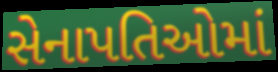
સેનાપતિઓમાં